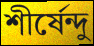
শীর্ষেন্দু